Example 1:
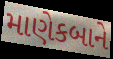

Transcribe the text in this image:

માણેકબાને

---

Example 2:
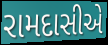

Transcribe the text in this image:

રામદાસીએ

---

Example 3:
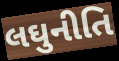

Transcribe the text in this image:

લઘુનીતિ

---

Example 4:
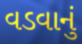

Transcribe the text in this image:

વડવાનું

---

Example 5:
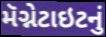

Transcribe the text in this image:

મૅગ્નેટાઇટનું